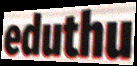
eduthu